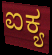
ಐಕ್ಯ